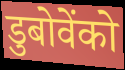
डुबोवेंको